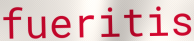
fueritis